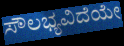
ಸೌಲಭ್ಯವಿದೆಯೇ